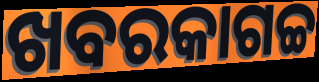
ଖବରକାଗଚ୍ଚ